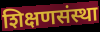
शिक्षणसंस्था